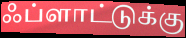
ஃப்ளாட்டுக்கு